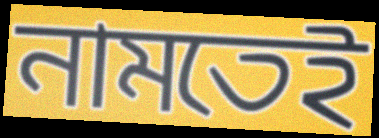
নামতেই